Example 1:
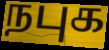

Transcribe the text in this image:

நபுக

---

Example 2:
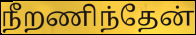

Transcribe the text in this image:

நீறணிந்தேன்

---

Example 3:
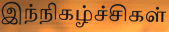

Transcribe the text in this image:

இந்நிகழ்ச்சிகள்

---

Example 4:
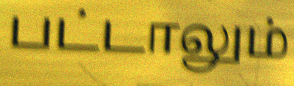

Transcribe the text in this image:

பட்டாலும்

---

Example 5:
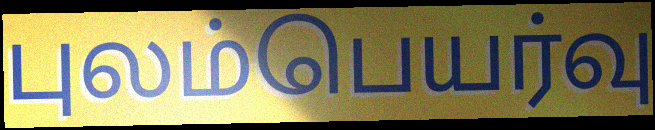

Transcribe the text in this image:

புலம்பெயர்வு